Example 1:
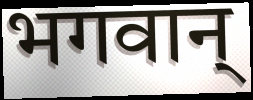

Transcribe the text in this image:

भगवान्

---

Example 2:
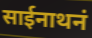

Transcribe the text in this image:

साईनाथनं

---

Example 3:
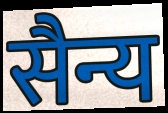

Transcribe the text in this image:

सैन्य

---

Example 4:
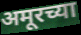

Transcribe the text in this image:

अमूरच्या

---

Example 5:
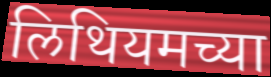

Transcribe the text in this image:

लिथियमच्या